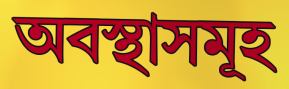
অবস্থাসমূহ